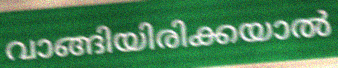
വാങ്ങിയിരിക്കയാൽ